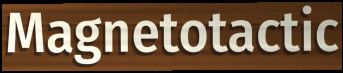
Magnetotactic